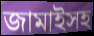
জামাইসহ